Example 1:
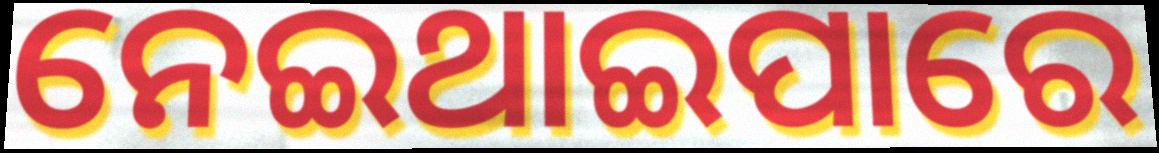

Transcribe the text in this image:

ନେଇଥାଇପାରେ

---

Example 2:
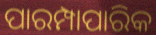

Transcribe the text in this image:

ପାରମ୍ପାପାରିକ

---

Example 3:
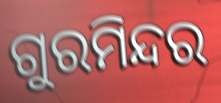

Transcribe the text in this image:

ଗୁରମିନ୍ଦର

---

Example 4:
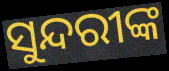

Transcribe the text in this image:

ସୁନ୍ଦରୀଙ୍କ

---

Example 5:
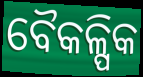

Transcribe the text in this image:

ବୈକଳ୍ପିକ